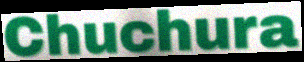
Chuchura